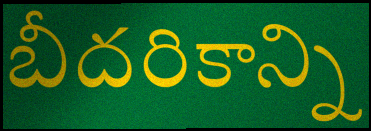
బీదరికాన్ని